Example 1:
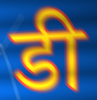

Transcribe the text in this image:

डी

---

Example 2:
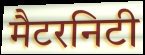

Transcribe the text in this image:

मैटरनिटी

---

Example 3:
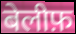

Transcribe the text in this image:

बेलीफ़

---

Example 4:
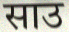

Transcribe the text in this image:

साउ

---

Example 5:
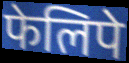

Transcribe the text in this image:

फेलिपे